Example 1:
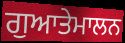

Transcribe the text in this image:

ਗੁਆਤੇਮਾਲਨ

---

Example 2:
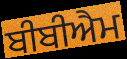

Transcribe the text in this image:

ਬੀਬੀਐਮ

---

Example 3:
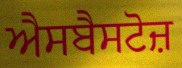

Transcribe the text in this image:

ਐਸਬੈਸਟੋਜ਼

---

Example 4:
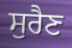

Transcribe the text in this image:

ਸੁਰੈਣ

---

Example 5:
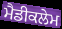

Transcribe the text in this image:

ਮੈਡੀਕਲੇਮ